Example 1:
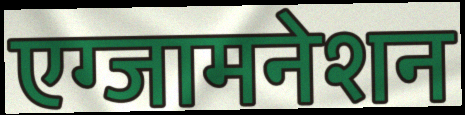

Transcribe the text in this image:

एग्जामनेशन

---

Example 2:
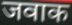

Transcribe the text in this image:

जवाक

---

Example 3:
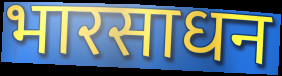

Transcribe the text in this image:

भारसाधन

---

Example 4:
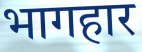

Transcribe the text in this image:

भागहार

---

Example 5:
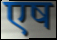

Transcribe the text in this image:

एष